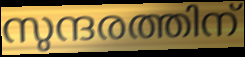
സുന്ദരത്തിന്